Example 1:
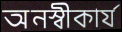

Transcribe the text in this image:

অনস্বীকার্য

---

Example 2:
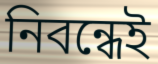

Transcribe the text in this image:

নিবন্ধেই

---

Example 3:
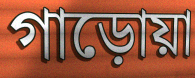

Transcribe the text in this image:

গাড়োয়া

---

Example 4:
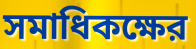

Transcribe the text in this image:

সমাধিকক্ষের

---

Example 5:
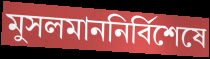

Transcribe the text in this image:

মুসলমাননির্বিশেষে